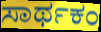
ಸಾರ್ಥಕಂ